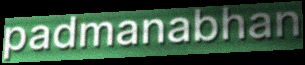
padmanabhan